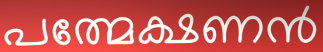
പത്മേക്ഷണൻ